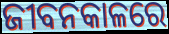
ଜୀବନକାଳରେ